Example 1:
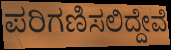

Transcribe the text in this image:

ಪರಿಗಣಿಸಲಿದ್ದೇವೆ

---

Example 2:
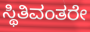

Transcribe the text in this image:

ಸ್ಥಿತಿವಂತರೇ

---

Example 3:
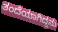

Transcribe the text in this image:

ತಂದೆಯಾಗಿದ್ದನು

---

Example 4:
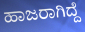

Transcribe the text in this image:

ಹಾಜರಾಗಿದ್ದೆ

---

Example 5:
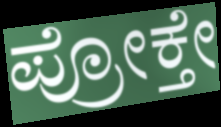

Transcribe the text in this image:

ಪ್ರೋಕ್ತೇ